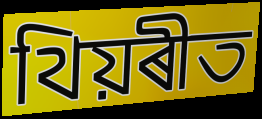
থিয়ৰীত